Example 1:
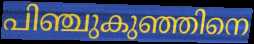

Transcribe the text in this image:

പിഞ്ചുകുഞ്ഞിനെ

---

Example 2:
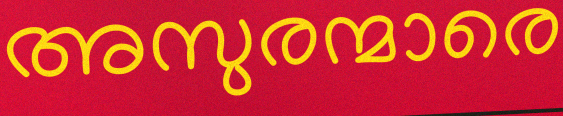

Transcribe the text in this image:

അസുരന്മാരെ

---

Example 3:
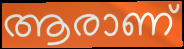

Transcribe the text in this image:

ആരാണ്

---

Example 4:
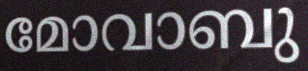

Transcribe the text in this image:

മോവാബു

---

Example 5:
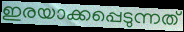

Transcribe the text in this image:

ഇരയാക്കപ്പെടുന്നത്